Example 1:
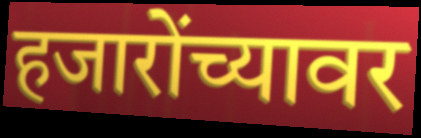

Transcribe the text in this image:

हजारोंच्यावर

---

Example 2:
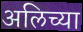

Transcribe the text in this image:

अलिच्या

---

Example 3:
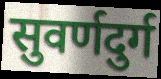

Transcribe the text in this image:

सुवर्णदुर्ग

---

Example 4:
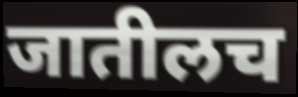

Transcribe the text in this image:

जातीलच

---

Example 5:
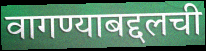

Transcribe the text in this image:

वागण्याबद्दलची